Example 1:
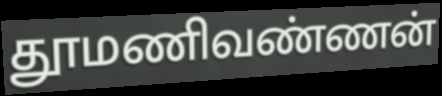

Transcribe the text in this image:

தூமணிவண்ணன்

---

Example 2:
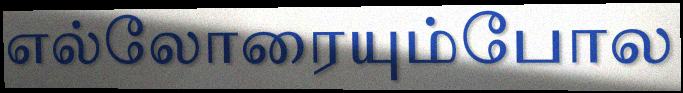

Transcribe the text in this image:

எல்லோரையும்போல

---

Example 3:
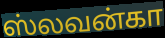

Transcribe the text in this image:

ஸ்லவன்கா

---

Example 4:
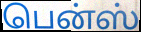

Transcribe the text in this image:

பென்ஸ்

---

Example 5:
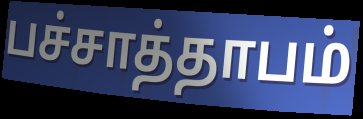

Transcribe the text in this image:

பச்சாத்தாபம்